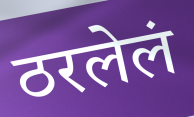
ठरलेलं